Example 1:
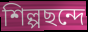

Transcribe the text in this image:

শিল্পছন্দে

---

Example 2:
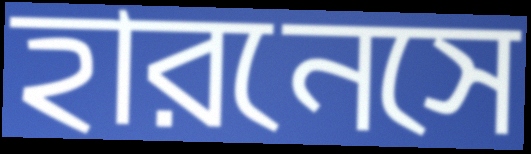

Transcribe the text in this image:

হারনেসে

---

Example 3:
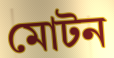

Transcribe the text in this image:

মোটন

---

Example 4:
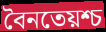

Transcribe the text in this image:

বৈনতেয়শ্চ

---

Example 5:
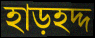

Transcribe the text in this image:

হাড়হদ্দ